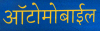
ऑटोमोबाईल